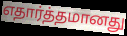
எதார்த்தமானது